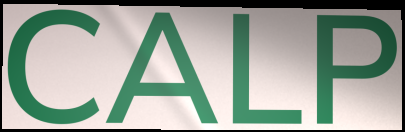
CALP